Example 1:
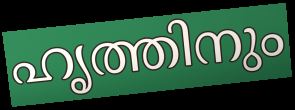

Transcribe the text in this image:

ഹൃത്തിനും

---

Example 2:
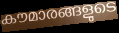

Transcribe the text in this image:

കൗമാരങ്ങളുടെ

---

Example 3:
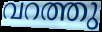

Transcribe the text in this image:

വറത്തു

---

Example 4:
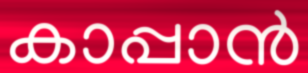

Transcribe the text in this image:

കാപ്പാൻ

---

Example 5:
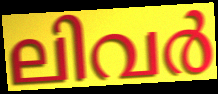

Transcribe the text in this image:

ലിവർ